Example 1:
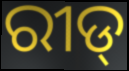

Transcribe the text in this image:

ରୀଡ୍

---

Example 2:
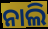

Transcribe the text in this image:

ନାଲି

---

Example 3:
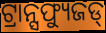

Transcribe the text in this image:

ଟ୍ରାନ୍ସଫ୍ୟୁଜଡ୍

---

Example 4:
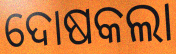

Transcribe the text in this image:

ଦୋଷକଲା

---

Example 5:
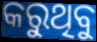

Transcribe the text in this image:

କରୁଥିବୁ